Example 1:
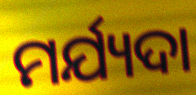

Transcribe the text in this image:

ମର୍ଯ୍ୟଦା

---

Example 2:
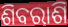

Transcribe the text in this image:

ଶିବରାଶି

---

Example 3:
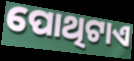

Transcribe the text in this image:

ପୋଥିଟାଏ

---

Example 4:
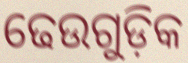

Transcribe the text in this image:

ଢେଉଗୁଡ଼ିକ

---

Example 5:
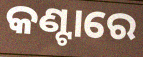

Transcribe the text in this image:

କଣ୍ଟାରେ